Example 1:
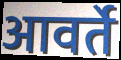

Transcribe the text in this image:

आवर्ते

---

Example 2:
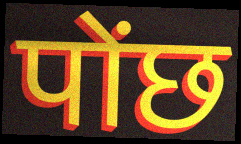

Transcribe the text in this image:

पोंछ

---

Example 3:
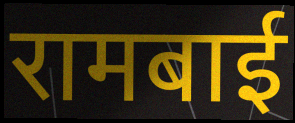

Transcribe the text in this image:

रामबाई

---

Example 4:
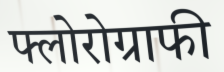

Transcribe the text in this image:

फ्लोरोग्राफी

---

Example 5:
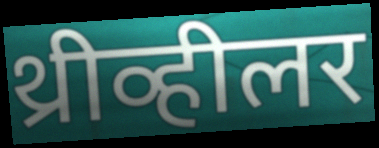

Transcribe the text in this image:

थ्रीव्हीलर